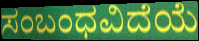
ಸಂಬಂಧವಿದೆಯೆ